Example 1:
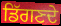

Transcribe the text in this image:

ਡਿੱਗਣਦੇ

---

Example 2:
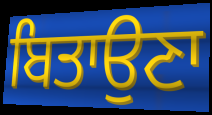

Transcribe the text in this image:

ਬਿਤਾਉਣਾ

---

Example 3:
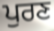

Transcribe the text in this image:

ਪੁਰਣ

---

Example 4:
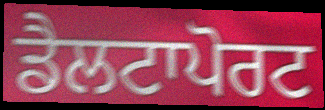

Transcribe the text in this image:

ਡੈਲਟਾਪੋਰਟ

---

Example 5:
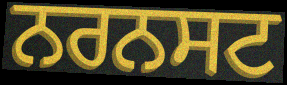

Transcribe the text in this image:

ਨਰਨਸਟ